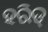
ହରିଡ୍